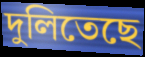
দুলিতেছে